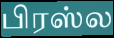
பிரஸ்ல